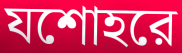
যশোহরে